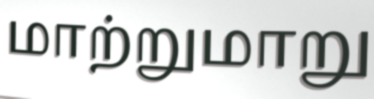
மாற்றுமாறு